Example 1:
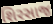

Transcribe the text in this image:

શિરસાજ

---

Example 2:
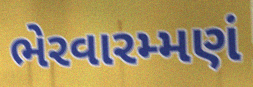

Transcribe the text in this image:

ભેરવારમ્મણં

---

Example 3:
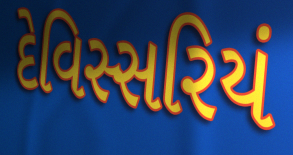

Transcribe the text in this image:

દેવિસ્સરિયં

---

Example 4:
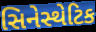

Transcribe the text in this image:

સિનેસ્થેટિક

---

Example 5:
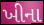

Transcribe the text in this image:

ખીના